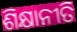
ଶିକ୍ଷାନୀତି